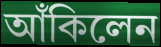
আঁকিলেন